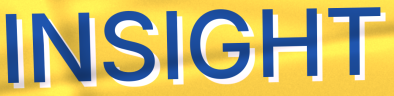
INSIGHT